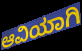
ಆವಿಯಾಗಿ